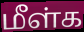
மீள்க